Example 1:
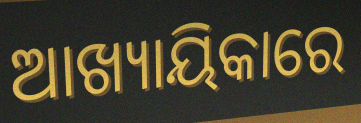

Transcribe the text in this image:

ଆଖ୍ୟାୟିକାରେ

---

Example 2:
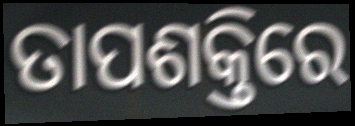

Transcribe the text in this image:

ତାପଶକ୍ତିରେ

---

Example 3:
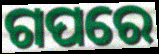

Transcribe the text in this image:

ଗପରେ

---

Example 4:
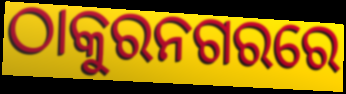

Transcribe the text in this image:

ଠାକୁରନଗରରେ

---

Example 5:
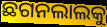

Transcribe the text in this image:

ଛଗନଲାଲକୁ